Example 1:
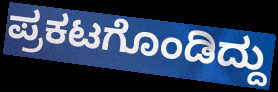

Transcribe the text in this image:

ಪ್ರಕಟಗೊಂಡಿದ್ದು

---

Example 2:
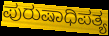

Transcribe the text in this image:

ಪುರುಷಾಧಿಪತ್ಯ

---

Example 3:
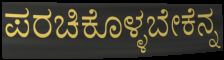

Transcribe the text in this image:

ಪರಚಿಕೊಳ್ಳಬೇಕೆನ್ನ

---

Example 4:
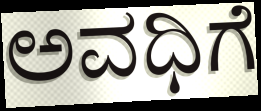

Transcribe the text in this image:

ಅವಧಿಗೆ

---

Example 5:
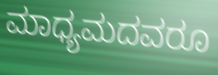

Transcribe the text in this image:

ಮಾಧ್ಯಮದವರೂ